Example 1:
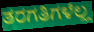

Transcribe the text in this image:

ತರಗತಿಗಳೆಲ್ಲ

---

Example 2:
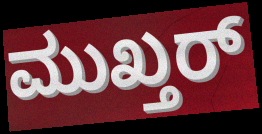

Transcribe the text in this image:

ಮುಖ್ತರ್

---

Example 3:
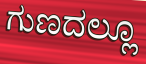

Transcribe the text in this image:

ಗುಣದಲ್ಲೂ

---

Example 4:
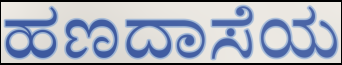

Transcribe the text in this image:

ಹಣದಾಸೆಯ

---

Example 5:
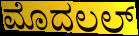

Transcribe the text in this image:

ಮೊದಲಲ್